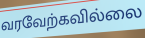
வரவேற்கவில்லை